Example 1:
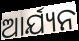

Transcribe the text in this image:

ଆର୍ଯ୍ୟନ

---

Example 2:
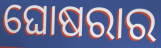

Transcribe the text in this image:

ଘୋଷରାର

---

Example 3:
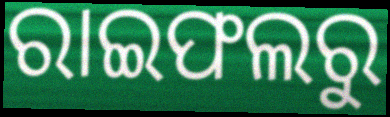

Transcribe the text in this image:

ରାଇଫଲରୁ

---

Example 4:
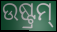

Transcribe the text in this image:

ଉଷ୍ଟ୍ରମ୍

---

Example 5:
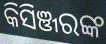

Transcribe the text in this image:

କିସିଞ୍ଜରଙ୍କ